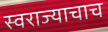
स्वराज्याचाच